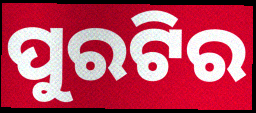
ପୁରଟିର